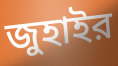
জুহাইর